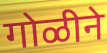
गोळीने